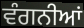
ਵੰਗਨੀਆਂ